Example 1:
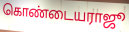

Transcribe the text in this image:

கொண்டையராஜூ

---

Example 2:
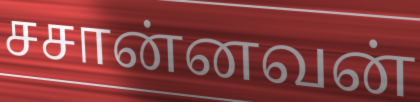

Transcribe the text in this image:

சசான்னவன்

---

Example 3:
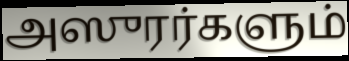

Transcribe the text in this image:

அஸுரர்களும்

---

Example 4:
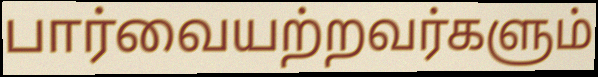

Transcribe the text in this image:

பார்வையற்றவர்களும்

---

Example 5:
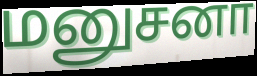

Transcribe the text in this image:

மனுசனா